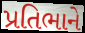
પ્રતિભાને